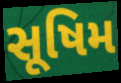
સૂષિમ